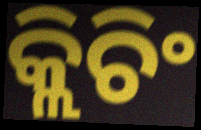
କ୍ଲିଚିଂ